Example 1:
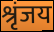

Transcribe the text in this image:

श्रृंजय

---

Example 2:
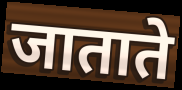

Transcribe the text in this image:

जाताते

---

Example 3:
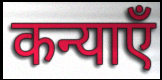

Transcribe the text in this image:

कन्याएँ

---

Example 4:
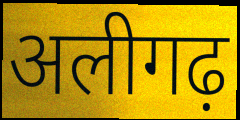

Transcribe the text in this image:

अलीगढ़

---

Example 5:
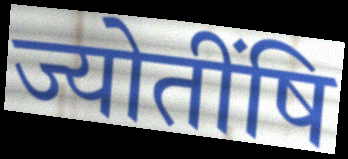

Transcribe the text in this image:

ज्योतींषि